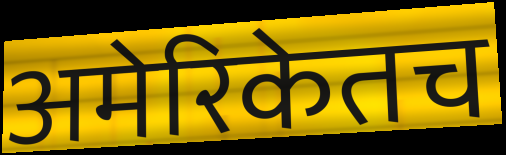
अमेरिकेतच